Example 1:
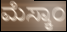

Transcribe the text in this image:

ಮೆಸ್ಕಾಂ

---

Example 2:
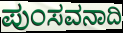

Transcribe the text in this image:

ಪುಂಸವನಾದಿ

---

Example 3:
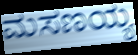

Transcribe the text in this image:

ಮಸಣಯ್ಯ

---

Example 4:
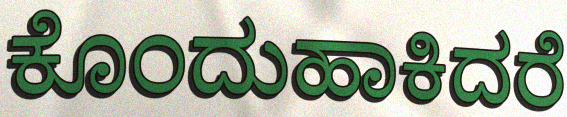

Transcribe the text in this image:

ಕೊಂದುಹಾಕಿದರೆ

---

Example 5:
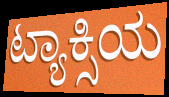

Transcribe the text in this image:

ಟ್ಯಾಕ್ಸಿಯ